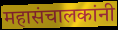
महासंचालकांनी